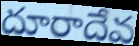
దూరాదేవ